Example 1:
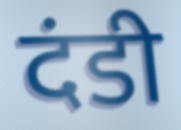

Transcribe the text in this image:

दंडी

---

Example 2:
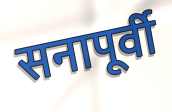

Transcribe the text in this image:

सनापूर्वी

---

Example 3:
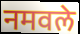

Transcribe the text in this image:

नमवले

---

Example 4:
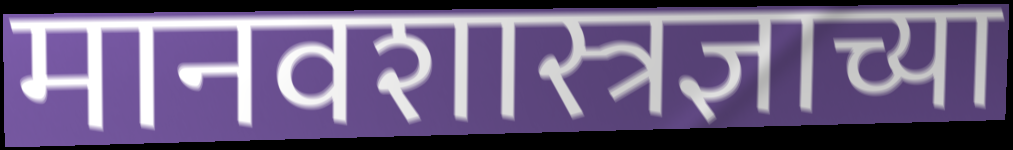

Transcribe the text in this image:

मानवशास्त्रज्ञाच्या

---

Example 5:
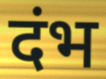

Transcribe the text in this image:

दंभ